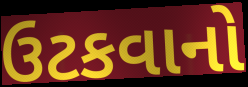
ઉટકવાનો